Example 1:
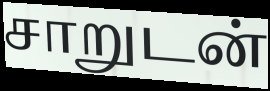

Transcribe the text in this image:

சாறுடன்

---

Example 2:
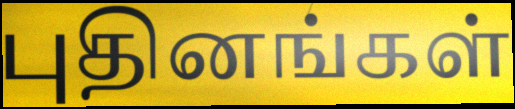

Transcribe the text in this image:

புதினங்கள்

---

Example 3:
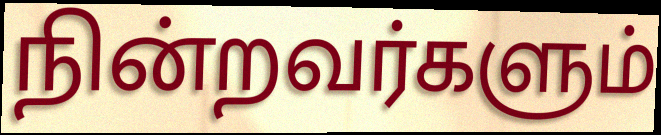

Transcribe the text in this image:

நின்றவர்களும்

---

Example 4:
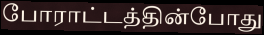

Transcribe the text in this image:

போராட்டத்தின்போது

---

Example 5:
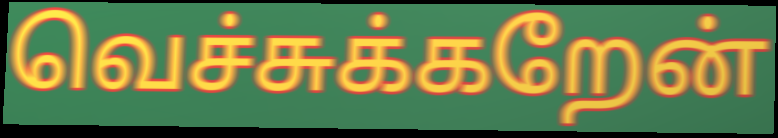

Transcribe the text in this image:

வெச்சுக்கறேன்